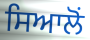
ਸਿਆਲੋਂ